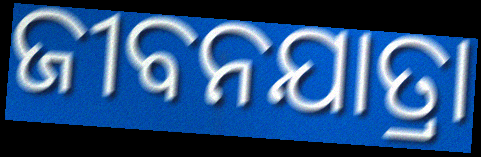
ଜୀବନଯାତ୍ରା